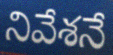
నివేశనే